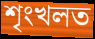
শৃংখলত